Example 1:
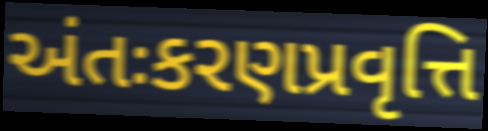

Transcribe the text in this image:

અંતઃકરણપ્રવૃત્તિ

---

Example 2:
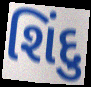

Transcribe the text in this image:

શિંદુ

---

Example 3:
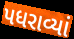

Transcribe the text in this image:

પધરાવ્યાં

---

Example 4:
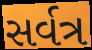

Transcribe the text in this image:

સર્વત્ર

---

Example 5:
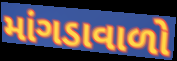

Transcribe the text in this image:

માંગડાવાળો